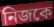
নিজকে